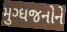
મુગ્ધજનોને